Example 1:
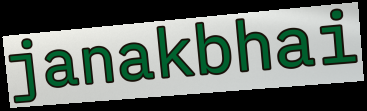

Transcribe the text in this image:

janakbhai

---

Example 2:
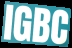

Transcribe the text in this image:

IGBC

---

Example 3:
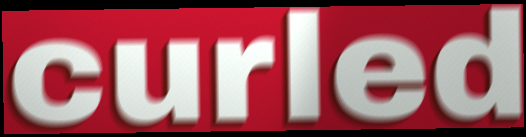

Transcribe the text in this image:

curled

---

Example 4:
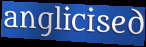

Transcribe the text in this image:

anglicised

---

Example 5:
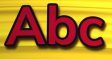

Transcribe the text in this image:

Abc